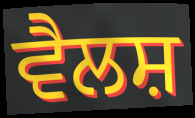
ਵੈਲਸ਼